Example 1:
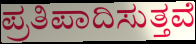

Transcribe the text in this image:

ಪ್ರತಿಪಾದಿಸುತ್ತವೆ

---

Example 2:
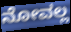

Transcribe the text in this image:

ನೋವಲ್ಲ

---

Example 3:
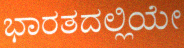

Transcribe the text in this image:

ಭಾರತದಲ್ಲಿಯೇ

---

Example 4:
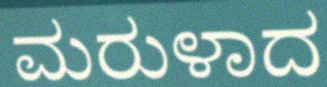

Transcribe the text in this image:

ಮರುಳಾದ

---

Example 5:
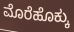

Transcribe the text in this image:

ಮೊರೆಹೊಕ್ಕು